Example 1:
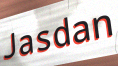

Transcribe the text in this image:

Jasdan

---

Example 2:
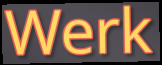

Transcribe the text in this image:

Werk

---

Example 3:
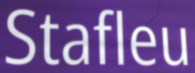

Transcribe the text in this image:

Stafleu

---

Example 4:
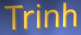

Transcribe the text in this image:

Trinh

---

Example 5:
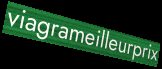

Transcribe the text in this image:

viagrameilleurprix